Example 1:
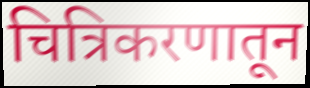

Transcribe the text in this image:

चित्रिकरणातून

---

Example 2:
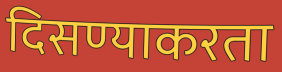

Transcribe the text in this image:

दिसण्याकरता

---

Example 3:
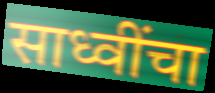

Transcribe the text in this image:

साध्वींचा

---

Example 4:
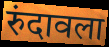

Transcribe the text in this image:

रुंदावला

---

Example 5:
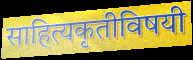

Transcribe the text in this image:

साहित्यकृतीविषयी